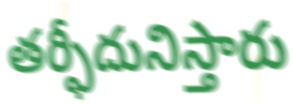
తర్ఫీదునిస్తారు